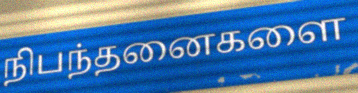
நிபந்தனைகளை